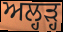
ਅਲ੍ਹੜ੍ਹ